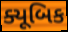
ક્યૂબિક